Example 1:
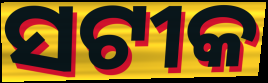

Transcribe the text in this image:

ସଟୀକ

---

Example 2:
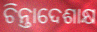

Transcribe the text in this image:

ଚିନ୍ତାଦେଶାକ୍ଷ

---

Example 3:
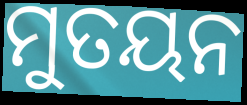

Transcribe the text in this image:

ମୁତୟନ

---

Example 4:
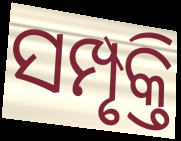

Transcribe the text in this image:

ସମ୍ପୃକ୍ତି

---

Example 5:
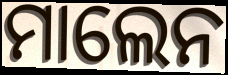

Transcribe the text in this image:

ମାଲେନ